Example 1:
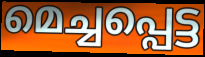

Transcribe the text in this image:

മെച്ചപ്പെട്ട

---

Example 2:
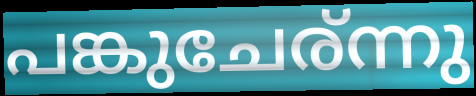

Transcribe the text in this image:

പങ്കുചേര്ന്നു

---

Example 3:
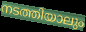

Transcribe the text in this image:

നടത്തിയാലും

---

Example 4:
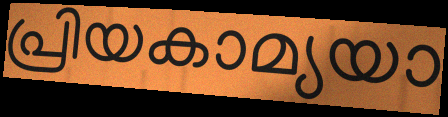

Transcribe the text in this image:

പ്രിയകാമ്യയാ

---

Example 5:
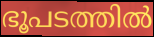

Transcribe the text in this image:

ഭൂപടത്തിൽ